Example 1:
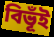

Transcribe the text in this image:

বিভূঁই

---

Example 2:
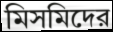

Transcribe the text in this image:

মিসমিদের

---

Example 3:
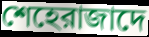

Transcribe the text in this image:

শেহেরাজাদে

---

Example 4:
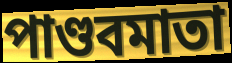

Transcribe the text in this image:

পাণ্ডবমাতা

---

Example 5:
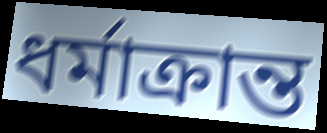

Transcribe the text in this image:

ধর্মাক্রান্ত